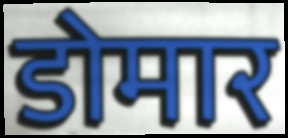
डोमार